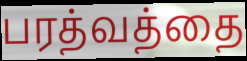
பரத்வத்தை